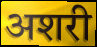
अशरी